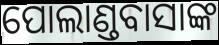
ପୋଲାଣ୍ଡବାସାଙ୍କ